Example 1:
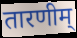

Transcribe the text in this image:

तारणीम्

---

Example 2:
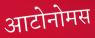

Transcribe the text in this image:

आटोनोमस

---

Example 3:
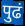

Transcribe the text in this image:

पुढं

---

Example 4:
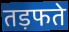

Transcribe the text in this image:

तड़फते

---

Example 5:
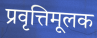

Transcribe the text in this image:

प्रवृत्तिमूलक